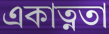
একাত্নতা